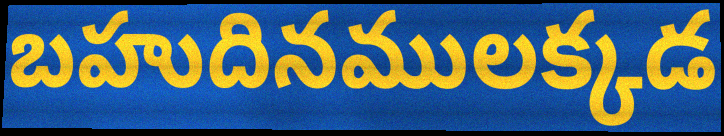
బహుదినములక్కడ